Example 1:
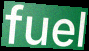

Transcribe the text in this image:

fuel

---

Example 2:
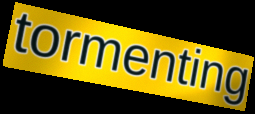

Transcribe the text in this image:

tormenting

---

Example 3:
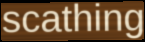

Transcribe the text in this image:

scathing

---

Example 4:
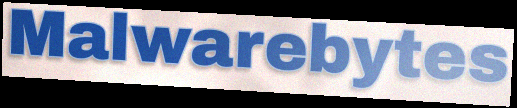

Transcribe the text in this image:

Malwarebytes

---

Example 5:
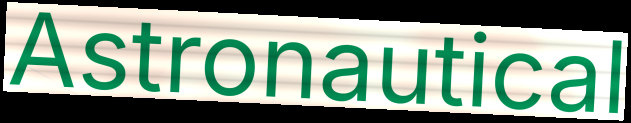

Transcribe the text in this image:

Astronautical